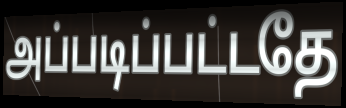
அப்படிப்பட்டதே